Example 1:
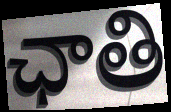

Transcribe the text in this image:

ఛాతి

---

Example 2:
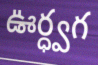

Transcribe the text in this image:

ఊర్ధ్వగ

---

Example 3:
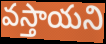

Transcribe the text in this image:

వస్తాయని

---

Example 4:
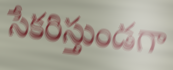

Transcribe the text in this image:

సేకరిస్తుండగా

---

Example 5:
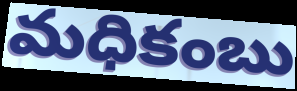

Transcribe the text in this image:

మధికంబు